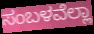
ಸಂಬಳವೆಲ್ಲಾ